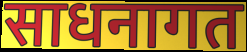
साधनागत